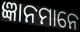
ଜ୍ଞାନମାନେ